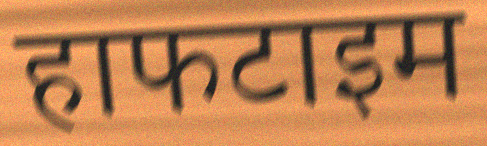
हाफटाइम